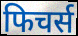
फिचर्स